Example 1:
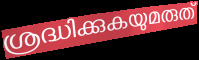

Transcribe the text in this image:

ശ്രദ്ധിക്കുകയുമരുത്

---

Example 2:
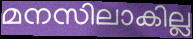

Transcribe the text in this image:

മനസിലാകില്ല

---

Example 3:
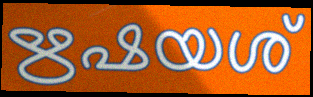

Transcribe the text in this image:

ഋഷയശ്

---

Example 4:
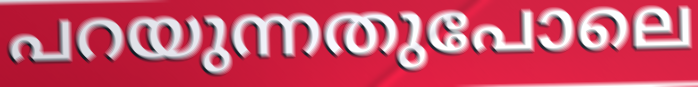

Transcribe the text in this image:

പറയുന്നതുപോലെ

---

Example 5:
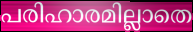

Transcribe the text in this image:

പരിഹാരമില്ലാതെ